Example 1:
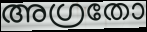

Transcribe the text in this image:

അഗ്രതോ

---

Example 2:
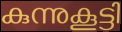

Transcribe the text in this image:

കുന്നുകൂട്ടി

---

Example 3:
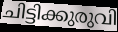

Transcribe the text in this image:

ചിട്ടിക്കുരുവി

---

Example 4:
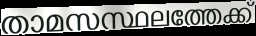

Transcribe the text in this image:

താമസസ്ഥലത്തേക്ക്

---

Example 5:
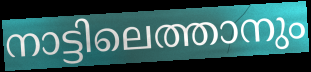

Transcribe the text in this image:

നാട്ടിലെത്താനും